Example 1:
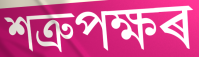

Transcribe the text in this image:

শত্ৰুপক্ষৰ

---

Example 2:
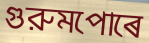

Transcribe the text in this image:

গুৰুমপোৰে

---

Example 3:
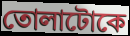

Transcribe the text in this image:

তোলাটোকে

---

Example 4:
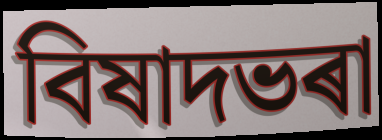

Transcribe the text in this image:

বিষাদভৰা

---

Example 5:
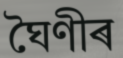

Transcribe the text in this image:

ঘৈণীৰ